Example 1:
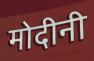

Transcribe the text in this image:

मोदीनी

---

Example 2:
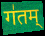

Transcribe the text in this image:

ग॑तम्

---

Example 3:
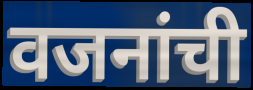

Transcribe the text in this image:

वजनांची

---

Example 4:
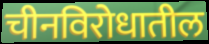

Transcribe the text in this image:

चीनविरोधातील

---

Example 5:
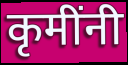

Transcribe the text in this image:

कृमींनी